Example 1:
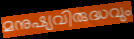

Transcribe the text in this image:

മനുഷ്യവിരുദ്ധവും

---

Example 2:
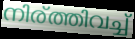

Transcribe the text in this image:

നിര്ത്തിവച്ച്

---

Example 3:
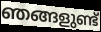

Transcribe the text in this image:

ഞങ്ങളുണ്ട്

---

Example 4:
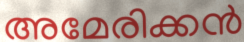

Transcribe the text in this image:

അമേരിക്കൻ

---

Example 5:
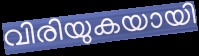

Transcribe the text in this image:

വിരിയുകയായി